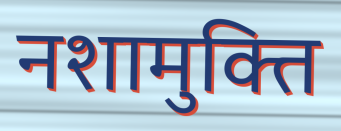
नशामुक्ति